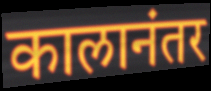
कालानंतर